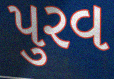
પુરવ